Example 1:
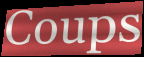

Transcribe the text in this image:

Coups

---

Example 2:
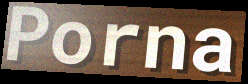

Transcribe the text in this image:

Porna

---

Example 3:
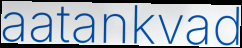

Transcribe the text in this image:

aatankvad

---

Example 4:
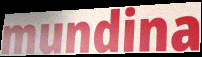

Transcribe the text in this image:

mundina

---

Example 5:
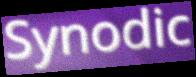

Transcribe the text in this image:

Synodic